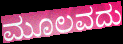
ಮೂಲವದು